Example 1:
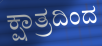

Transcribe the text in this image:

ಕ್ಷಾತ್ರದಿಂದ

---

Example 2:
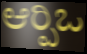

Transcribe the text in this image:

ಆರ್‍ಪಿಒ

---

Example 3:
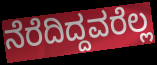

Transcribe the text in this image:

ನೆರೆದಿದ್ದವರೆಲ್ಲ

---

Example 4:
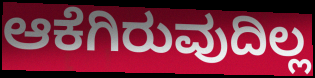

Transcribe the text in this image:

ಆಕೆಗಿರುವುದಿಲ್ಲ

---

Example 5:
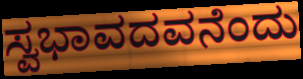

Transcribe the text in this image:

ಸ್ವಭಾವದವನೆಂದು